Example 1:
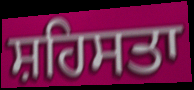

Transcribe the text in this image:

ਸ਼ਹਿਸਤਾ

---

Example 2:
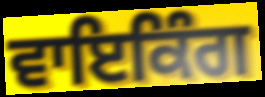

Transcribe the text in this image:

ਵਾਇਕਿੰਗ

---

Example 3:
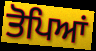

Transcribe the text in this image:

ਤੋਪਿਆਂ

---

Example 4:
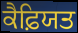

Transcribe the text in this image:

ਕੈਫ਼ਿਯਤ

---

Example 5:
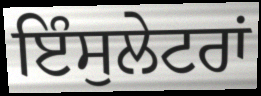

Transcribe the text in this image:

ਇੰਸੁਲੇਟਰਾਂ